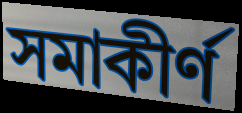
সমাকীর্ণ